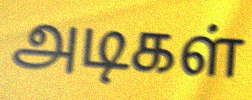
அடிகள்